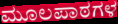
ಮೂಲಪಾಠಗಳ